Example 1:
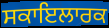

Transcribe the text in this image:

ਸਕਾਇਲਾਰਕ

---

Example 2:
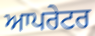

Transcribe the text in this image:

ਆਪਰੇਟਰ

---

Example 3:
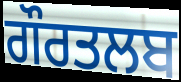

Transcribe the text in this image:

ਗੌਰਤਲਬ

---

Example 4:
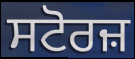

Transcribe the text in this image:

ਸਟੋਰਜ਼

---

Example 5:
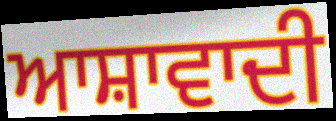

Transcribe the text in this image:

ਆਸ਼ਾਵਾਦੀ